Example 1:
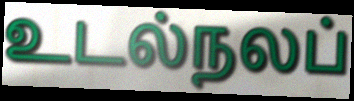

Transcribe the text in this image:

உடல்நலப்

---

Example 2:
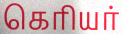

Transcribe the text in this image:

கெரியர்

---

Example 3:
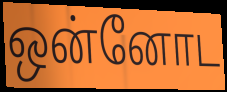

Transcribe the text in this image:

ஒன்னோட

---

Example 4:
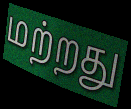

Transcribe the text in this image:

மற்றது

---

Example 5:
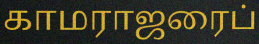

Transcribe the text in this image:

காமராஜரைப்